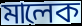
মালেক